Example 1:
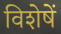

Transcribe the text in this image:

विशेषें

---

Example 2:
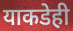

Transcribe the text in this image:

याकडेही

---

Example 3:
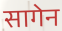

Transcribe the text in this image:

सागेन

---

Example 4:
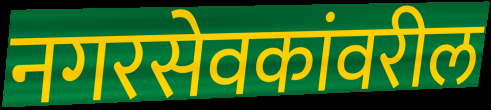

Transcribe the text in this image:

नगरसेवकांवरील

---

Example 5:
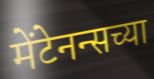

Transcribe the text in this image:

मेंटेनन्सच्या